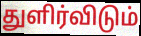
துளிர்விடும்